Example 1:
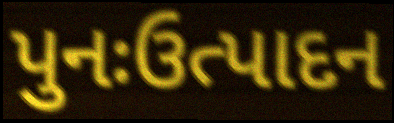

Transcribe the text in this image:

પુનઃઉત્પાદન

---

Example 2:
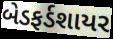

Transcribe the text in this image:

બેડફર્ડશાયર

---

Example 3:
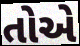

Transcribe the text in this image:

તોએ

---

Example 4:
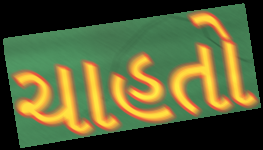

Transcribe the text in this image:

ચાહતો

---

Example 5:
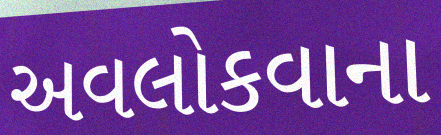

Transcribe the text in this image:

અવલોકવાના